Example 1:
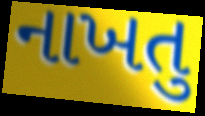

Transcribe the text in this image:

નાખતુ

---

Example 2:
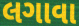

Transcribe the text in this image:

લગાવા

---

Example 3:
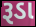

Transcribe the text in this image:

રૂડા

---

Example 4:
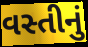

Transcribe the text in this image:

વસ્તીનું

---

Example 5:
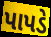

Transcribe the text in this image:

પાપડે